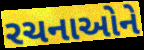
રચનાઓને